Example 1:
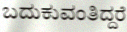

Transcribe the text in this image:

ಬದುಕುವಂತಿದ್ದರೆ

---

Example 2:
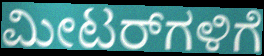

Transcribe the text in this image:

ಮೀಟರ್‌ಗಳಿಗೆ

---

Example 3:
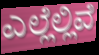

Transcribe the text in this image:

ಎಲ್ಲೆಲ್ಲಿವೆ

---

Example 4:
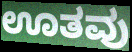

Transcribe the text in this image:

ಊತವು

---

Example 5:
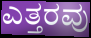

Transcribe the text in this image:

ಎತ್ತರವು